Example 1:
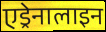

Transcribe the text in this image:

एड्रेनालाइन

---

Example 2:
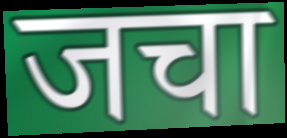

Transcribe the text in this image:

जचा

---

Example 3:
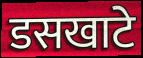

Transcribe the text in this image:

डसखाटे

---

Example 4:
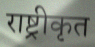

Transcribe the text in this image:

राष्ट्रीकृत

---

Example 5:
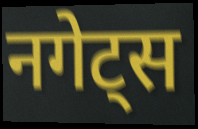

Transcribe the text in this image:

नगेट्स